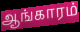
ஆங்காரம்